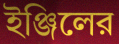
ইঞ্জিলের